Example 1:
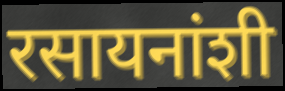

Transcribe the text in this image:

रसायनांशी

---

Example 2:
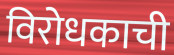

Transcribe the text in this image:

विरोधकाची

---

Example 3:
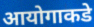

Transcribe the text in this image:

आयोगाकडे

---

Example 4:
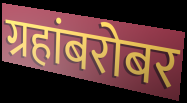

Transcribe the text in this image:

ग्रहांबरोबर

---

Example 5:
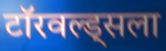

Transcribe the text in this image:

टॉरवल्ड्सला